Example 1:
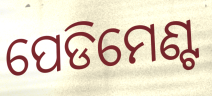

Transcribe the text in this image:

ପେଡିମେଣ୍ଟ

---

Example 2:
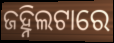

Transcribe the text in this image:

ଜହ୍ନିଲଟାରେ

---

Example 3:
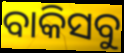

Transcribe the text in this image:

ବାକିସବୁ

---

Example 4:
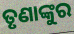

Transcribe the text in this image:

ତୃଣାଙ୍କୁର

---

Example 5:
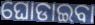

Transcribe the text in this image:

ଘୋଡାଇବା